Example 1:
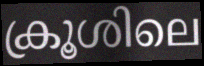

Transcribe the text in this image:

ക്രൂശിലെ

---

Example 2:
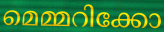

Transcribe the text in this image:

മെമ്മറിക്കോ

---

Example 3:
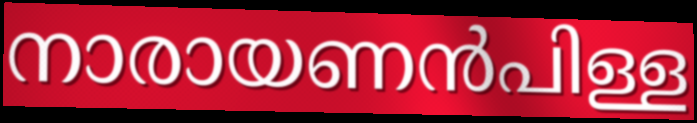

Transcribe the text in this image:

നാരായണൻപിള്ള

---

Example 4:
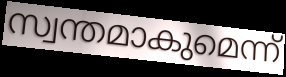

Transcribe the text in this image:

സ്വന്തമാകുമെന്ന്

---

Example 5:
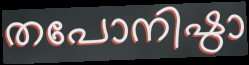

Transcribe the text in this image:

തപോനിഷ്ഠാ